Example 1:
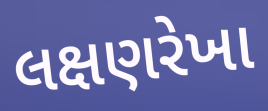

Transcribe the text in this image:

લક્ષણરેખા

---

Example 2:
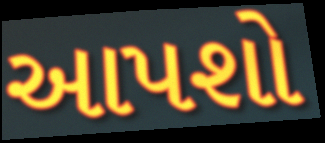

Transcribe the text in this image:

આપશો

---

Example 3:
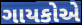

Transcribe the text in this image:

ગાયકોએ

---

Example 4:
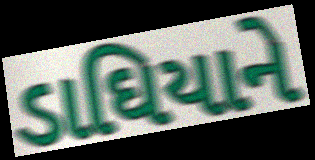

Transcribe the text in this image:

ડાઘિયાને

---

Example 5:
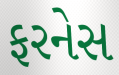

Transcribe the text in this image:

ફરનેસ